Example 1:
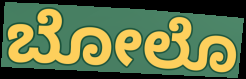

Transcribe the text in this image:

ಬೋಲೊ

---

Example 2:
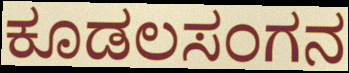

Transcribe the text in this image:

ಕೂಡಲಸಂಗನ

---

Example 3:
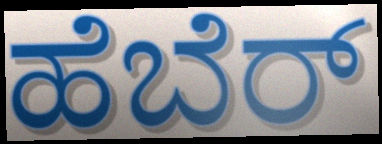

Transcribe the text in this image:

ಹೆಬೆರ್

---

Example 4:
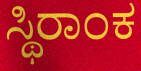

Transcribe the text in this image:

ಸ್ಥಿರಾಂಕ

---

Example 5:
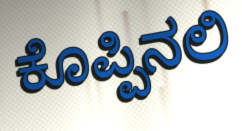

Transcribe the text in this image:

ಕೊಪ್ಪಿನಲಿ